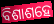
ବିଶାଶହେ